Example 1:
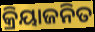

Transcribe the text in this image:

କ୍ରିୟାଜନିତ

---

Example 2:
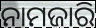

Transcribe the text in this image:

ନାମଜାରି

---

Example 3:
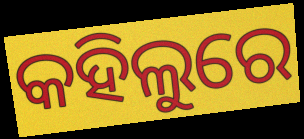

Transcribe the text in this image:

କହିଲୁରେ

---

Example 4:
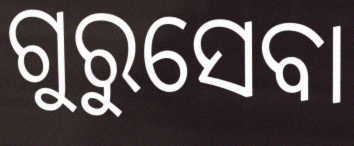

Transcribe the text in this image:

ଗୁରୁସେବା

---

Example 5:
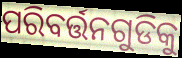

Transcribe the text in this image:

ପରିବର୍ତ୍ତନଗୁଡିକୁ